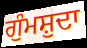
ਗੁੰਮਸ਼ੁਦਾ